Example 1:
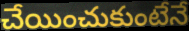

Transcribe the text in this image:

చేయించుకుంటేనే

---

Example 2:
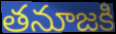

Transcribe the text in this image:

తనూజకి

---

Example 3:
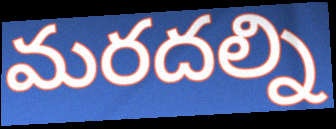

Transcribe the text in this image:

మరదల్ని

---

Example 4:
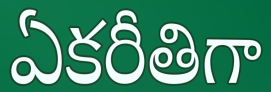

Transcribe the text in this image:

ఏకరీతిగా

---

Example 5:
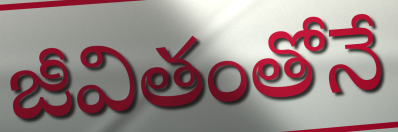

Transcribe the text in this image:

జీవితంతోనే